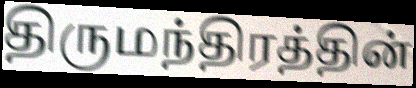
திருமந்திரத்தின்